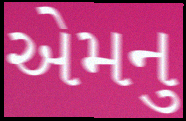
એમનુ